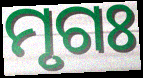
ମୃଗଃ